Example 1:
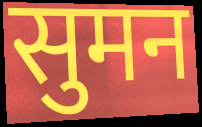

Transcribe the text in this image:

सुमन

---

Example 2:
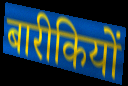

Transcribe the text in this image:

बारीकियों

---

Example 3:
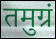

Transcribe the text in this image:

तमुग्रं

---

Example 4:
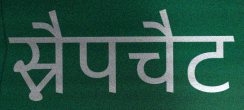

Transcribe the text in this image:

स्नैपचैट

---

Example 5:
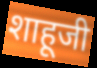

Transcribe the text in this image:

शाहूजी